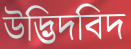
উদ্ভিদবিদ